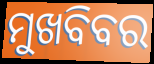
ମୁଖବିବର